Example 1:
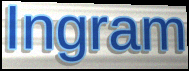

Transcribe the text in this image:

Ingram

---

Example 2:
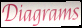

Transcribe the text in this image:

Diagrams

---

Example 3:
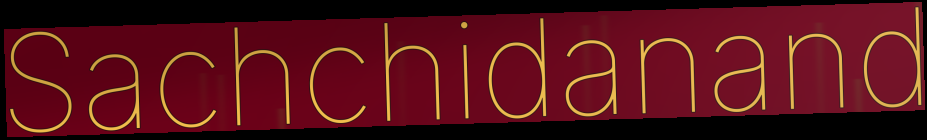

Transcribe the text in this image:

Sachchidanand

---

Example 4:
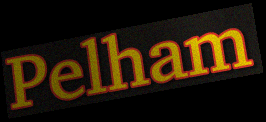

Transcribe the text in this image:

Pelham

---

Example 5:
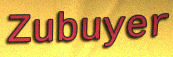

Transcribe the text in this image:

Zubuyer